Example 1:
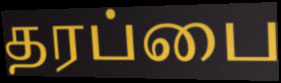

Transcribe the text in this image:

தரப்பை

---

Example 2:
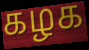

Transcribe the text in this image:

கழக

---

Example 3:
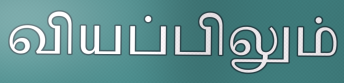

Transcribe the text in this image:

வியப்பிலும்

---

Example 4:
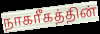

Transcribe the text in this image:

நாகரீகத்தின்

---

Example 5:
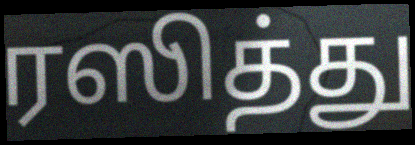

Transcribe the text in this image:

ரஸித்து